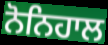
ਨੋਨਿਹਾਲ